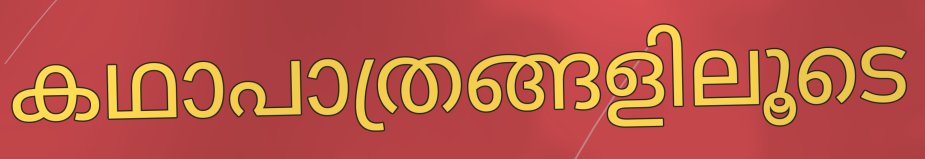
കഥാപാത്രങ്ങളിലൂടെ